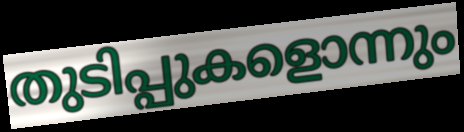
തുടിപ്പുകളൊന്നും